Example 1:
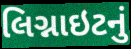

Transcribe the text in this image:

લિગ્નાઇટનું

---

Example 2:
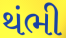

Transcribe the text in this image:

થંભી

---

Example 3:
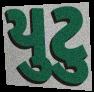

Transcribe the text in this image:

યુટુ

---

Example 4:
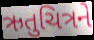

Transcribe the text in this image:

ઋતુચિત્રને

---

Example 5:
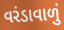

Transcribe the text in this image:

વરંડાવાળું